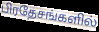
பிரதேசங்களில்